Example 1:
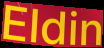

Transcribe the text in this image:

Eldin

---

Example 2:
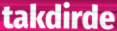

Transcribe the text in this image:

takdirde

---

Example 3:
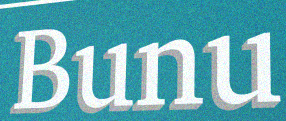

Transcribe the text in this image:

Bunu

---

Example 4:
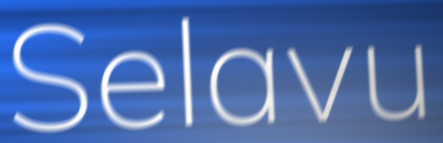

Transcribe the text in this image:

Selavu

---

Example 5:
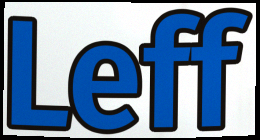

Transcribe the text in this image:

Leff